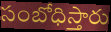
సంబోధిస్తారు